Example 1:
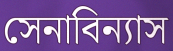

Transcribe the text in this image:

সেনাবিন্যাস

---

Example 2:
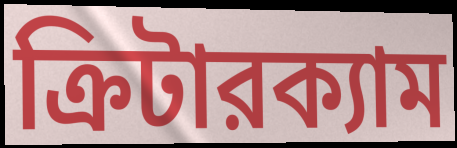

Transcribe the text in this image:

ক্রিটারক্যাম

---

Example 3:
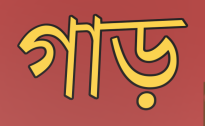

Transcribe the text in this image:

গাড়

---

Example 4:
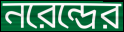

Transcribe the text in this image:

নরেন্দ্রের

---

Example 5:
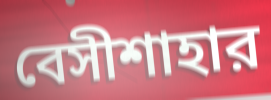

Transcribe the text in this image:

বেসীশাহার